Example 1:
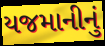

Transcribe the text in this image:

યજમાનીનું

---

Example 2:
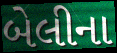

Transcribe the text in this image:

બેલીના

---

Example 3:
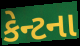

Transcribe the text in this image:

કેન્ટના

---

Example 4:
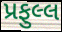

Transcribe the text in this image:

પ્રફુલ્લ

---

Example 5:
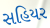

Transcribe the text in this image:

સહિયર